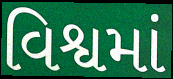
વિશ્વમાં